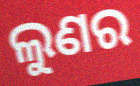
ଲୁଣର